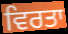
ਵਿਰਤਾ